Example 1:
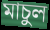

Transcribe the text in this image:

মাচুল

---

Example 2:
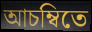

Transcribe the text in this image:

আচম্বিতে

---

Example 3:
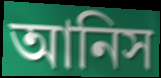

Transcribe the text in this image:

আনিস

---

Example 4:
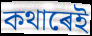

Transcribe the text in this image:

কথাৰেই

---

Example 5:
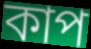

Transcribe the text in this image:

কাপ